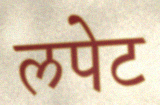
लपेट